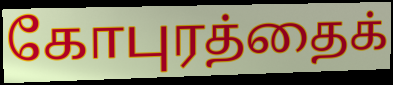
கோபுரத்தைக்